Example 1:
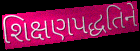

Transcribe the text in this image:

શિક્ષણપદ્ધતિને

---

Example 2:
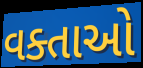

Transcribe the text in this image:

વક્તાઓ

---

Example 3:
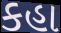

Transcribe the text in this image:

કહા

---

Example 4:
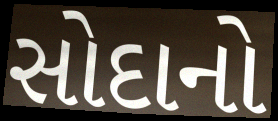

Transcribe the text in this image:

સોદાનો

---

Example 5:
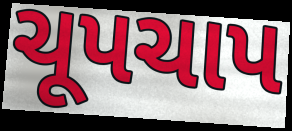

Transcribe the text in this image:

ચૂપચાપ